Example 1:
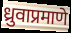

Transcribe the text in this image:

ध्रुवाप्रमाणे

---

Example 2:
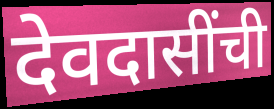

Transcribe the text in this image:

देवदासींची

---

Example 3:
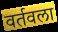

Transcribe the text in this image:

वर्तवला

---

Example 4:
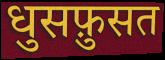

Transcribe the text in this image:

धुसफ़ुसत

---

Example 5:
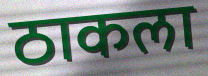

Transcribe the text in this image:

ठाकला